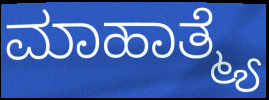
ಮಾಹಾತ್ಮ್ಯೆ